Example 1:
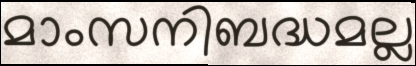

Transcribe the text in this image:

മാംസനിബദ്ധമല്ല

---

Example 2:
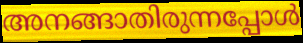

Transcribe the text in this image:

അനങ്ങാതിരുന്നപ്പോൾ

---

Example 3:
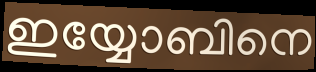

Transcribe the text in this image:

ഇയ്യോബിനെ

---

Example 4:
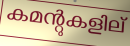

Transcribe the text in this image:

കമന്റുകളില്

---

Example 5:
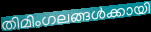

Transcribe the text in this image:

തിമിംഗലങ്ങൾക്കായി